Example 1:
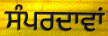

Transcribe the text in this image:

ਸੰਪਰਦਾਵਾਂ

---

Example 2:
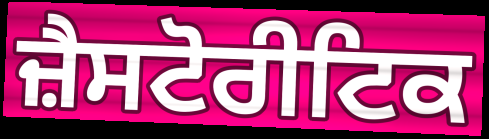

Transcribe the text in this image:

ਜ਼ੈਸਟੋਰੀਟਿਕ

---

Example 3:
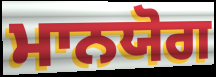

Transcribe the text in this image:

ਮਾਨਯੋਗ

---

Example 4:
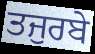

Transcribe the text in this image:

ਤਜੁਰਬੇ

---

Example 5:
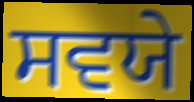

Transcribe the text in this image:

ਸਵਯੇ